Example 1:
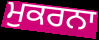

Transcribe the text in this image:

ਮੁਕਰਨਾ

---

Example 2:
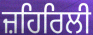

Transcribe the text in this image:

ਜ਼ਹਿਰਿਲੀ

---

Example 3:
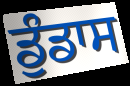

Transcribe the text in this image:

ਡੁੰਡਾਸ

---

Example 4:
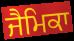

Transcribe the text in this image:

ਜੈਮਿਕਾ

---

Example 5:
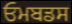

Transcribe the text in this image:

ਓਮਬਡਸ